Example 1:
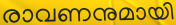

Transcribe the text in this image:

രാവണനുമായി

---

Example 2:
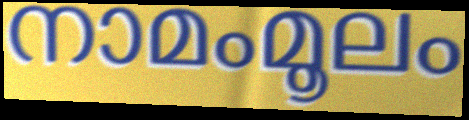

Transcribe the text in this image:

നാമംമൂലം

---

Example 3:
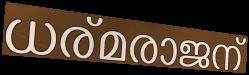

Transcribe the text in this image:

ധര്മരാജന്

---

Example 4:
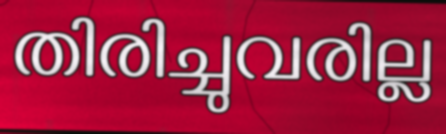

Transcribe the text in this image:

തിരിച്ചുവരില്ല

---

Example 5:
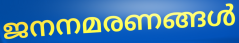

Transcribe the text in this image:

ജനനമരണങ്ങൾ